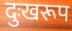
दुःखरूप